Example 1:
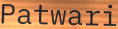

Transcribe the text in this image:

Patwari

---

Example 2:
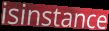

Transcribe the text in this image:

isinstance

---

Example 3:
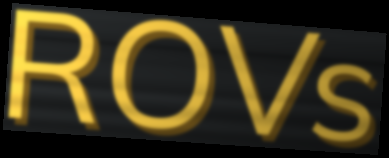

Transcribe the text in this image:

ROVs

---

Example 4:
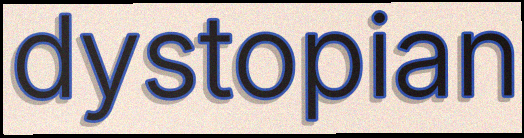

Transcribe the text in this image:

dystopian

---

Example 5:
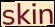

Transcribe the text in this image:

skin